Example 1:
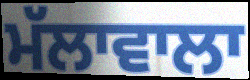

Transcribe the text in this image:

ਮੱਲਾਵਾਲਾ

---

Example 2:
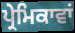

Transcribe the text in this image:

ਪ੍ਰੇਮਿਕਾਵਾਂ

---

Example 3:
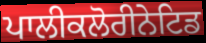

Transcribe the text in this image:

ਪਾਲੀਕਲੋਰੀਨੇਟਿਡ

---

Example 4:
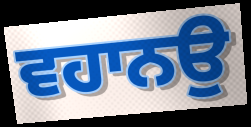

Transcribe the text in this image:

ਵਹਾਨਉ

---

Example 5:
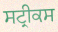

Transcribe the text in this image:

ਸਟ੍ਰੀਕਸ